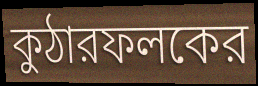
কুঠারফলকের